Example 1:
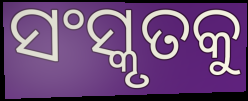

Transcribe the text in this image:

ସଂସ୍କୃତକୁ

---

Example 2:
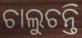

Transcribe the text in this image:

ଚାଲୁଚନ୍ତି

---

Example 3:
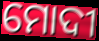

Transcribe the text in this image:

ମୋଦୀ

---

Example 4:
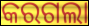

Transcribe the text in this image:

କରଗଲା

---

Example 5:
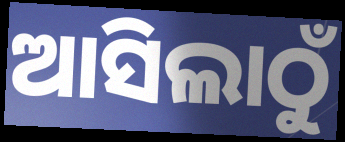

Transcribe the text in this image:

ଆସିଲାଠୁଁ